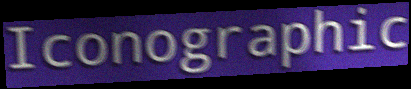
Iconographic